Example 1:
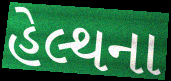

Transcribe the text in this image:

હેલ્થના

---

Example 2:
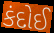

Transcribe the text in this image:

કંદોઈ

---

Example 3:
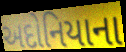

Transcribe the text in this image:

અદોનિયાના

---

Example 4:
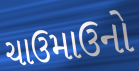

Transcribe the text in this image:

ચાઉમાઉનો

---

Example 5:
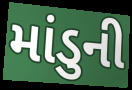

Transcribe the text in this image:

માંડુની